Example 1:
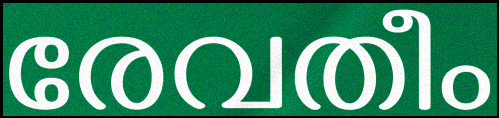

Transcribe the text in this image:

രേവതീം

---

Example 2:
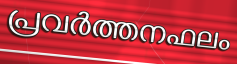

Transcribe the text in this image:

പ്രവർത്തനഫലം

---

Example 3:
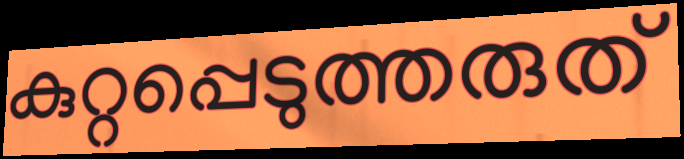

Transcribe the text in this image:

കുറ്റപ്പെടുത്തരുത്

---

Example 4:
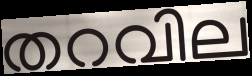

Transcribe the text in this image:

തറവില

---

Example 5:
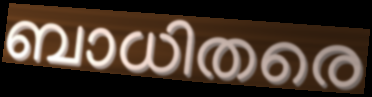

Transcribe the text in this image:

ബാധിതരെ